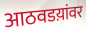
आठवडय़ांवर